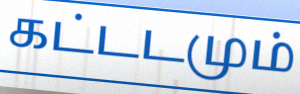
கட்டடமும்